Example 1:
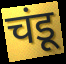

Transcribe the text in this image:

चंडू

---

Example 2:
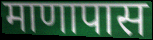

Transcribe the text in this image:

माणापास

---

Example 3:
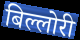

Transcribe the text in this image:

बिल्लोरी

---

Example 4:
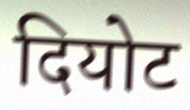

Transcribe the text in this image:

दियोट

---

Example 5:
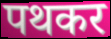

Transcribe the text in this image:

पथकर